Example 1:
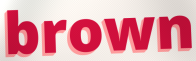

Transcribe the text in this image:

brown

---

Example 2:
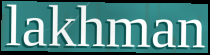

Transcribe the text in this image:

lakhman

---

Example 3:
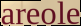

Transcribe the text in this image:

areole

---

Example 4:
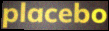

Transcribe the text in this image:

placebo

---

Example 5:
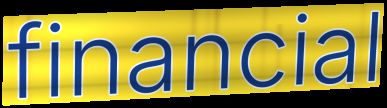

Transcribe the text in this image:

financial